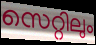
സെറ്റിലും